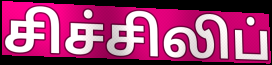
சிச்சிலிப்